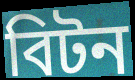
বিটন